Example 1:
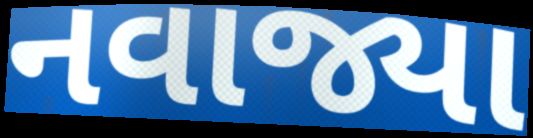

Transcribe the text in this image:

નવાજ્યા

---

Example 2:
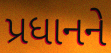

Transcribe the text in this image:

પ્રધાનને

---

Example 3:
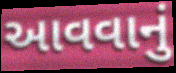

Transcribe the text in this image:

આવવાનું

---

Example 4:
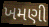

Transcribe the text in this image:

ખમણી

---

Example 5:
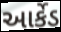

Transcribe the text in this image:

આર્કેડ